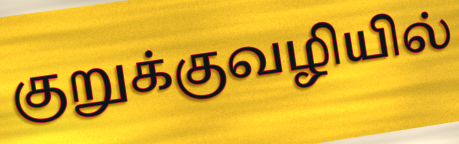
குறுக்குவழியில்